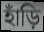
হাঁড়ি